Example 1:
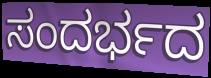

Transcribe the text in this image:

ಸಂದರ್ಭದ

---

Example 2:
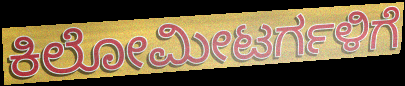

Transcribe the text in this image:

ಕಿಲೋಮೀಟರ್ಗಳಿಗೆ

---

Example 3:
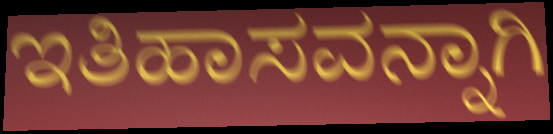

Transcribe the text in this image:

ಇತಿಹಾಸವನ್ನಾಗಿ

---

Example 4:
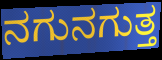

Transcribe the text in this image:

ನಗುನಗುತ್ತ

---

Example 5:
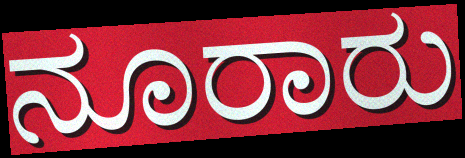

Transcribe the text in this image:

ನೂರಾರು